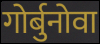
गोर्बुनोवा